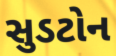
સુડટોન